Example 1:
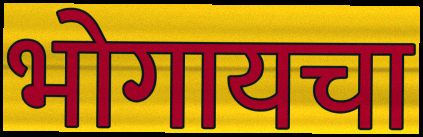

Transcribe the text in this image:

भोगायचा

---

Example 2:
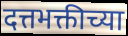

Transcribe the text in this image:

दत्तभक्तीच्या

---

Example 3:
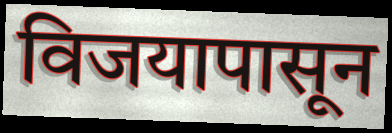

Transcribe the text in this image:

विजयापासून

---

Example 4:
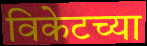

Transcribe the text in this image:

विकेटच्या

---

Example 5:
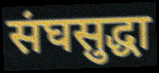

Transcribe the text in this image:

संघसुद्धा